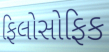
ફિલોસોફિક